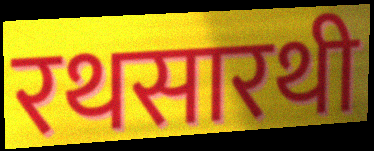
रथसारथी